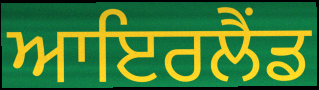
ਆਇਰਲੈਂਡ